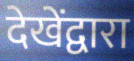
देखेंद्वारा